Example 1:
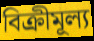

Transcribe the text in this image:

বিক্ৰীমূল্য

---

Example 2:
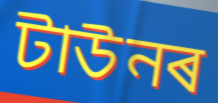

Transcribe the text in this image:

টাউনৰ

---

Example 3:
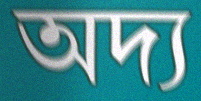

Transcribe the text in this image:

অদ্য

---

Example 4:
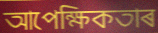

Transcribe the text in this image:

আপেক্ষিকতাৰ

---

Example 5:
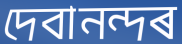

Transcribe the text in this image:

দেবানন্দৰ